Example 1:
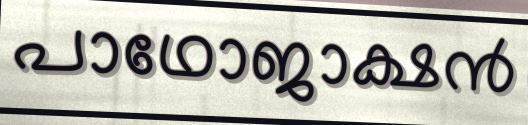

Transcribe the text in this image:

പാഥോജാക്ഷൻ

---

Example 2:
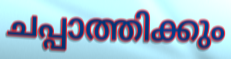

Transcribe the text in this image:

ചപ്പാത്തിക്കും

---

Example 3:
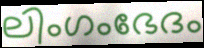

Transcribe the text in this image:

ലിംഗംഭേദം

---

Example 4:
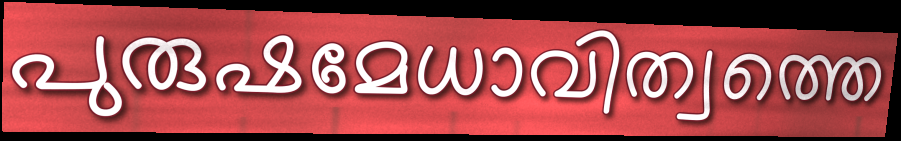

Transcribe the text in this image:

പുരുഷമേധാവിത്വത്തെ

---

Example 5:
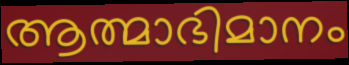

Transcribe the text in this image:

ആത്മാഭിമാനം